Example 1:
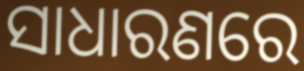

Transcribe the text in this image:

ସାଧାରଣରେ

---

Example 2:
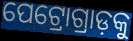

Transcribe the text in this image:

ପେଟ୍ରୋଗ୍ରାଡ଼କୁ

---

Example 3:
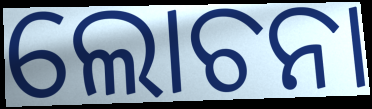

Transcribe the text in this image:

ଲୋଚନା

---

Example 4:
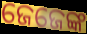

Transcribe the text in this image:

ଜେଜେଙ୍କ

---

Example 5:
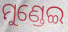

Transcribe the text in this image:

ମୁଣ୍ଡେଇ